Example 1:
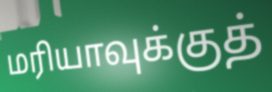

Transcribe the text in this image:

மரியாவுக்குத்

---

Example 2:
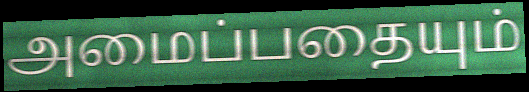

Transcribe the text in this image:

அமைப்பதையும்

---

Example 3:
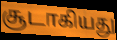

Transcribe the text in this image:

சூடாகியது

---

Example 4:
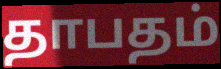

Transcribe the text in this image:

தாபதம்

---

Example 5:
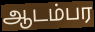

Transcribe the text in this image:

ஆடம்பர